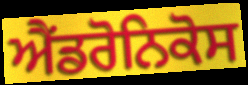
ਐਂਡਰੋਨਿਕੋਸ